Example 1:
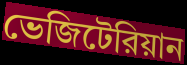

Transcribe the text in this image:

ভেজিটেরিয়ান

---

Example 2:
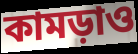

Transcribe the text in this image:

কামড়াও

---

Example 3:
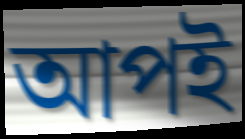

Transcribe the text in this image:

আপই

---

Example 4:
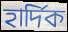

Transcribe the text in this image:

হার্দিক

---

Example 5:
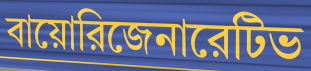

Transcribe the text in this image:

বায়োরিজেনারেটিভ